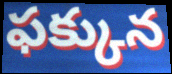
ఫక్కున